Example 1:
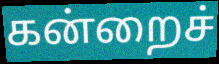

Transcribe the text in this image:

கன்றைச்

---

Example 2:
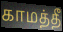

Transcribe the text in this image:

காமத்தீ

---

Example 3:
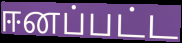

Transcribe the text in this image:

ஈனப்பட்ட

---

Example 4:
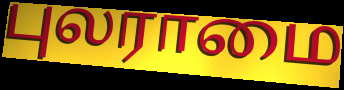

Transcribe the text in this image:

புலராமை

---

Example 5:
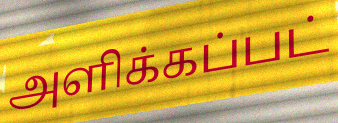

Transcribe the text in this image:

அளிக்கப்பட்